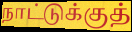
நாட்டுக்குத்